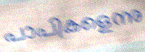
പാപികളെന്നു